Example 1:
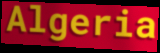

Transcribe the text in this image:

Algeria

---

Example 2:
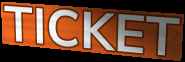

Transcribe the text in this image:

TICKET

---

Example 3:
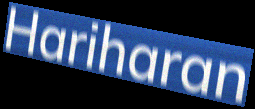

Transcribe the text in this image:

Hariharan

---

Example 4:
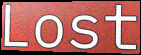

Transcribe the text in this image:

Lost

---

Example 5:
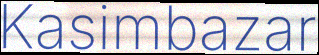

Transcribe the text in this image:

Kasimbazar